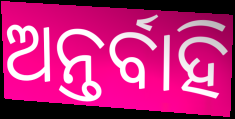
ଅନ୍ତର୍ବାହି